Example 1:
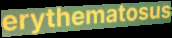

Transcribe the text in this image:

erythematosus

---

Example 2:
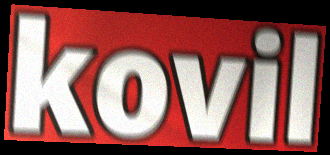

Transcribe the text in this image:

kovil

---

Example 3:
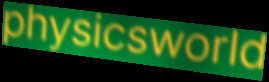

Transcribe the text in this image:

physicsworld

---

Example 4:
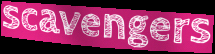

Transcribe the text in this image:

scavengers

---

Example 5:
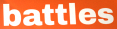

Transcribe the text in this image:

battles